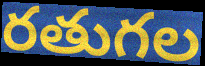
రతుగల